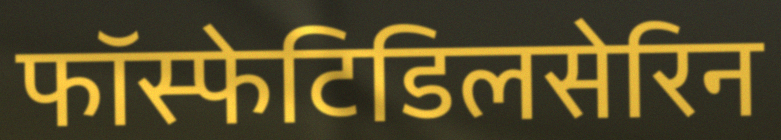
फॉस्फेटिडिलसेरिन